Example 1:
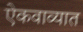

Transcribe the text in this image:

ऐकवाव्यात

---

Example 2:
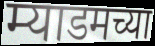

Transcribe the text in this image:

म्याडमच्या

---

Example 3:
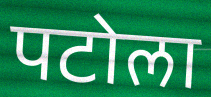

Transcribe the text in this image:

पटोला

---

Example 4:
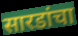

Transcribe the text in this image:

सारडांचा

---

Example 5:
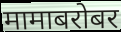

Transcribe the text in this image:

मामाबरोबर